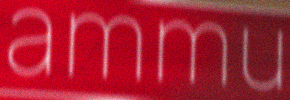
ammu